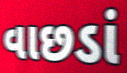
વાછડાં